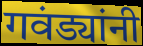
गवंड्यांनी